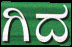
ಗಿದ